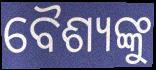
ବୈଶ୍ୟଙ୍କୁ